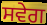
ਸਵੇਗ